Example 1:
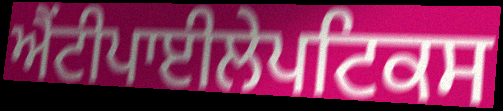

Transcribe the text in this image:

ਐਂਟੀਪਾਈਲੇਪਟਿਕਸ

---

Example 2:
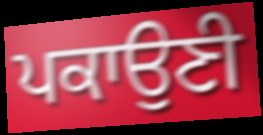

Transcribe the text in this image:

ਪਕਾਉਣੀ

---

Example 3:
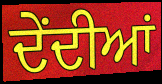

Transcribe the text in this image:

ਦੇਂਦੀਆਂ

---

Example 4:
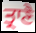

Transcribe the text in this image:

ਤ੍ਰਾਣੈ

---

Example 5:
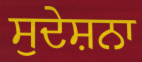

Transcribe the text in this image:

ਸੁਦੇਸ਼ਨਾ